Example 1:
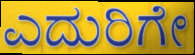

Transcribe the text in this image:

ಎದುರಿಗೇ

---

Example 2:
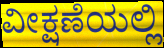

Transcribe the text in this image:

ವೀಕ್ಷಣೆಯಲ್ಲಿ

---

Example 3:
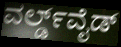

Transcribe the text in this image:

ವರ್ಲ್ಡ್‌ವೈಡ್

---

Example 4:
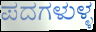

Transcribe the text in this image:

ಪದಗಳುಳ್ಳ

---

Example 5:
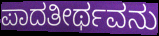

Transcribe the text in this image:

ಪಾದತೀರ್ಥವನು